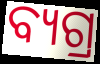
ବ୍ୟଗ୍ର